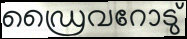
ഡ്രൈവറോടു്